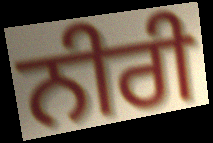
ਨੀਰੀ